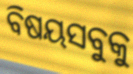
ବିଷୟସବୁକୁ